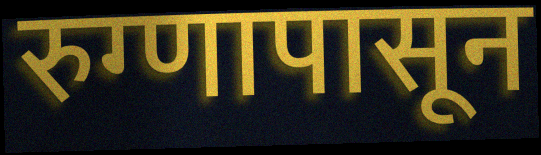
रुग्णापासून